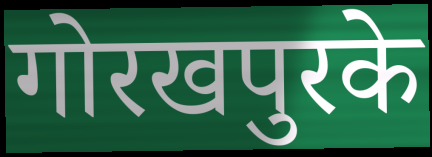
गोरखपुरके